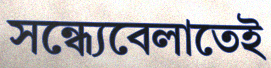
সন্ধ্যেবেলাতেই